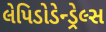
લેપિડોડેન્ડ્રેલ્સ